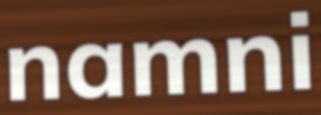
namni